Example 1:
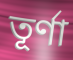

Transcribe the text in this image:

তূর্ণা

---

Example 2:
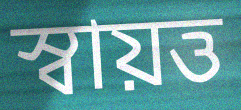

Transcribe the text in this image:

স্বায়ত্ত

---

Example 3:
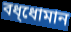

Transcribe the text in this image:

বধ্ধোমান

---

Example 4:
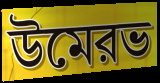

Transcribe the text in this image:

উমেরভ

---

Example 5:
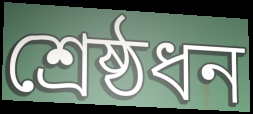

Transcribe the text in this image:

শ্রেষ্ঠধন